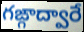
గఙ్గాద్వారే